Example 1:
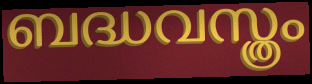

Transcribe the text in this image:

ബദ്ധവസ്ത്രം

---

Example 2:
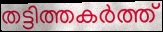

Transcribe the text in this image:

തട്ടിത്തകർത്ത്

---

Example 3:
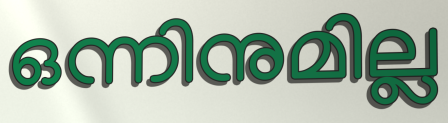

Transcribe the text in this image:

ഒന്നിനുമില്ല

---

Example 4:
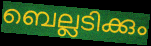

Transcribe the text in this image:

ബെല്ലടിക്കും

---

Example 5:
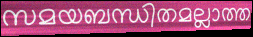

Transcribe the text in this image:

സമയബന്ധിതമല്ലാത്ത